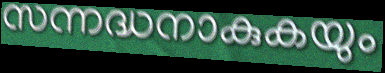
സന്നദ്ധനാകുകയും